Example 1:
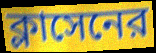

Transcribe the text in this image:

ক্লাসেনের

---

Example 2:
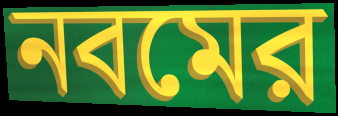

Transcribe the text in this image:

নবমের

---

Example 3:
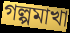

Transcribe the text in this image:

গল্পমাখা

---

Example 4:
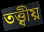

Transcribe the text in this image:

তত্ত্বীয়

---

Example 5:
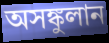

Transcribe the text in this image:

অসঙ্কুলান